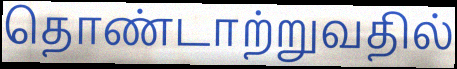
தொண்டாற்றுவதில்